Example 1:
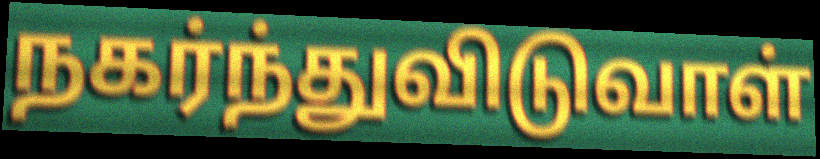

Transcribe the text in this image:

நகர்ந்துவிடுவாள்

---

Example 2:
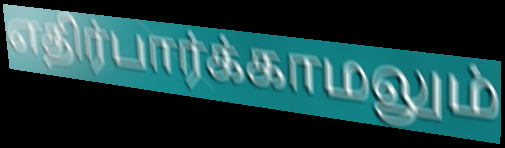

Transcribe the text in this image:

எதிர்பார்க்காமலும்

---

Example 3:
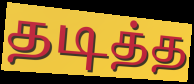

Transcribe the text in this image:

தடித்த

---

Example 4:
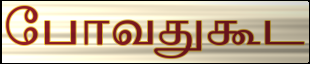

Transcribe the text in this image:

போவதுகூட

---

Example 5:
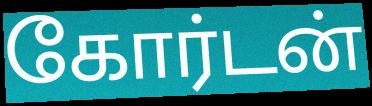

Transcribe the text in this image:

கோர்டன்